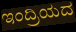
ಇಂದ್ರಿಯದ